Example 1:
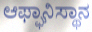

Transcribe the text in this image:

ಆಫ್ಘಾನಿಸ್ಥಾನ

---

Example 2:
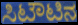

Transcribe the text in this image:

ಸಿಟೌಟಿನ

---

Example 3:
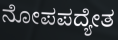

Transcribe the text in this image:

ನೋಪಪದ್ಯೇತ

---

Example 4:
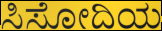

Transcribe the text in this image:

ಸಿಸೋದಿಯ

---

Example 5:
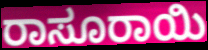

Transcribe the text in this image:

ರಾಸೂರಾಯಿ